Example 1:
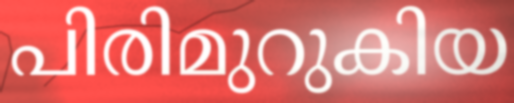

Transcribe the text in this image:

പിരിമുറുകിയ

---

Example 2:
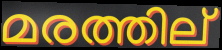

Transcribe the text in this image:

മരത്തില്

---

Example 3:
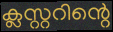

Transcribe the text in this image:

ക്ലസ്റ്ററിന്റെ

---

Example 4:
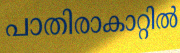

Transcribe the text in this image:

പാതിരാകാറ്റിൽ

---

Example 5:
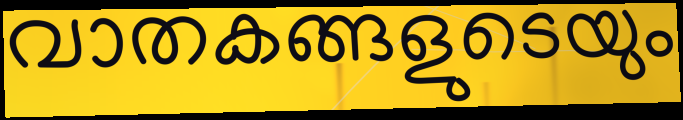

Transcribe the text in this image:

വാതകങ്ങളുടെയും